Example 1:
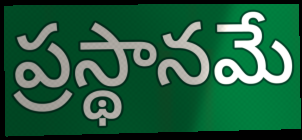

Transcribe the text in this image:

ప్రస్థానమే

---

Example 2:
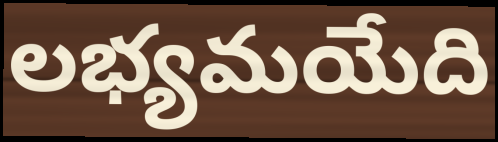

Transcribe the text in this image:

లభ్యమయేది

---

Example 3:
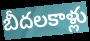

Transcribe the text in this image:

బీదలకాళ్లు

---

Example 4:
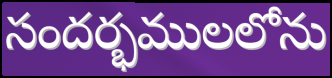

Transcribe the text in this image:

సందర్భములలోను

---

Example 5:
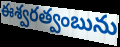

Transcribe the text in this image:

ఈశ్వరత్వంబును